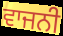
ਵਾਜਨੀ